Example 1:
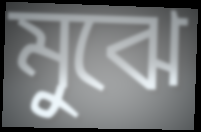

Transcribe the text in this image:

মুঝে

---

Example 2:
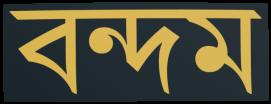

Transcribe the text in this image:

বন্দম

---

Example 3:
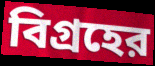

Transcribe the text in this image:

বিগ্রহের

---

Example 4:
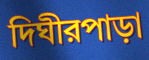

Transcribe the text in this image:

দিঘীরপাড়া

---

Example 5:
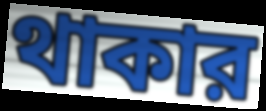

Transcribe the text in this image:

থাকার